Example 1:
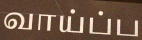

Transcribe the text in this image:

வாய்ப்ப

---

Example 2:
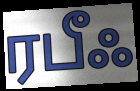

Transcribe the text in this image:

ரபீஃ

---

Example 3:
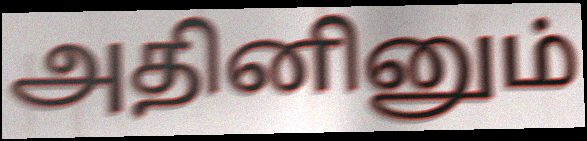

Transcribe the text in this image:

அதினினும்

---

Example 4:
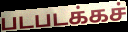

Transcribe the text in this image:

படபடக்கச்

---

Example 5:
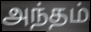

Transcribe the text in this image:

அந்தம்